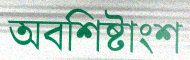
অবশিষ্টাংশ